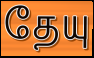
தேயு